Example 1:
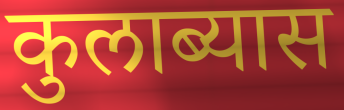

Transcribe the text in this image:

कुलाब्यास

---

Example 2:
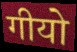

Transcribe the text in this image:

गीयो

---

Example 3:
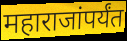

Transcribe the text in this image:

महाराजांपर्यंत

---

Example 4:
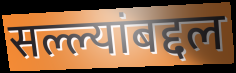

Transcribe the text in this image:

सल्ल्यांबद्दल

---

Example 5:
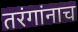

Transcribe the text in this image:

तरंगांनाच